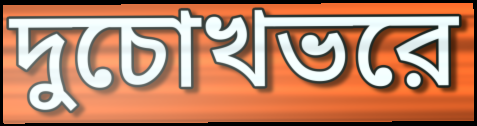
দুচোখভরে